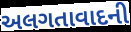
અલગતાવાદની